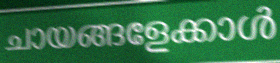
ചായങ്ങളേക്കാൾ